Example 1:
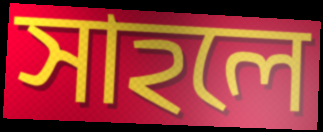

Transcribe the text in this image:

সাহলে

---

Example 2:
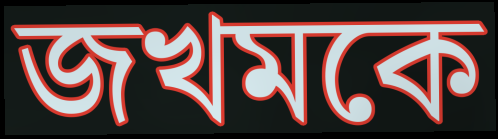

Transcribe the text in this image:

জখমকে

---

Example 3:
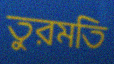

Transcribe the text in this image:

তুরমতি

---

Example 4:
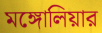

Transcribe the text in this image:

মঙ্গোলিয়ার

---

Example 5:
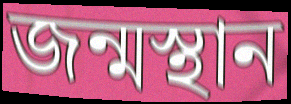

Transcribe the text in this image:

জন্মস্থান